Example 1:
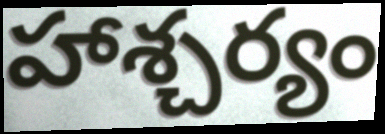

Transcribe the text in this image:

హాశ్చర్యం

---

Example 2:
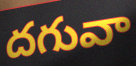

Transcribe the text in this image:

దగువా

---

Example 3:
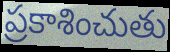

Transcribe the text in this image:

ప్రకాశించుతు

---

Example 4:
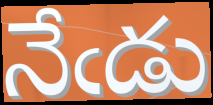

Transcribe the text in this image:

నేఁడు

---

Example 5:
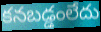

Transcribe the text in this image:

కనబడ్డంలేదు